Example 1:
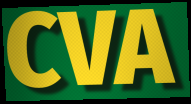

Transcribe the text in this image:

CVA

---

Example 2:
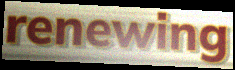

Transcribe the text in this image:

renewing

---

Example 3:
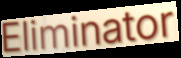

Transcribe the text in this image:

Eliminator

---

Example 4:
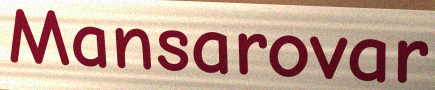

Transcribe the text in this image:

Mansarovar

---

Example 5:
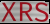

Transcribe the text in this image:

XRS